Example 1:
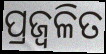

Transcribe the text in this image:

ପ୍ରଜ୍ୱଳିତ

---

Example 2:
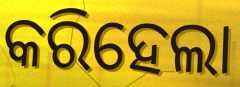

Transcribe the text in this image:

କରିହେଲା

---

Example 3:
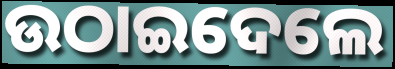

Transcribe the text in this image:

ଉଠାଇଦେଲେ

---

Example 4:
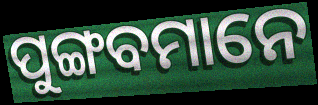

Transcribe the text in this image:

ପୁଙ୍ଗବମାନେ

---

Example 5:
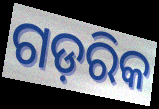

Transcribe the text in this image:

ଗଡ଼ରିକ